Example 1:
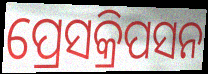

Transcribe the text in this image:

ପ୍ରେସକ୍ରିପସନ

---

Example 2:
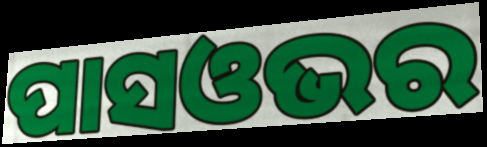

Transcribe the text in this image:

ପାସଓଭର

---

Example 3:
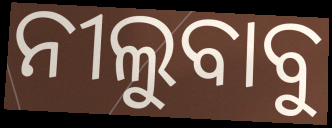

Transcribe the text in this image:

ନୀଲୁବାବୁ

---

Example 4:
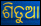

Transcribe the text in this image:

ଶିତୁଆ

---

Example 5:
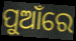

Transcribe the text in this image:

ପୁଆଁରେ